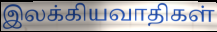
இலக்கியவாதிகள்